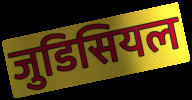
जुडिसियल